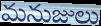
మనుజులు